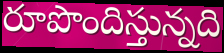
రూపొందిస్తున్నది